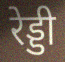
रेड्डी